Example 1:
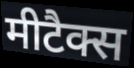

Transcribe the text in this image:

मीटैक्स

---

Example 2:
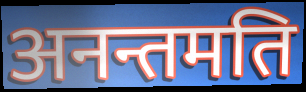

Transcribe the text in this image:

अनन्तमति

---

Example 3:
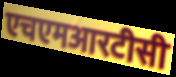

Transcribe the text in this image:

एचएमआरटीसी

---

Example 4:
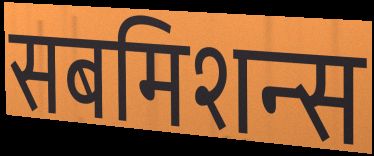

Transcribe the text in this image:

सबमिशन्स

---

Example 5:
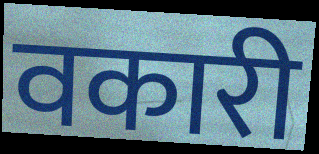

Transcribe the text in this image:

वकारी